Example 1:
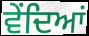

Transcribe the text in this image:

ਵੇਂਦਿਆਂ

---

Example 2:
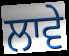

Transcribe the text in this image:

ਲਾਵੇ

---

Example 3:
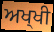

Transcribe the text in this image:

ਅਖ੍ਖੀ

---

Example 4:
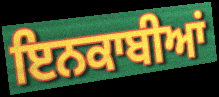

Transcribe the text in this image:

ਇਨਕਾਬੀਆਂ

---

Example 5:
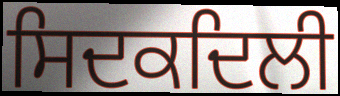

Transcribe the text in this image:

ਸਿਦਕਦਿਲੀ